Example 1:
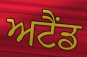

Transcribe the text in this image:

ਅਟੈਂਡ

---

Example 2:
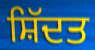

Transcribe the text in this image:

ਸ਼ਿੱਦਤ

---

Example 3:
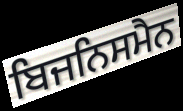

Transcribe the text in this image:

ਬਿਜਨਿਸਮੈਨ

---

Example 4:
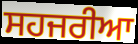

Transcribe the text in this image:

ਸਹਜਰੀਆ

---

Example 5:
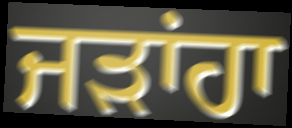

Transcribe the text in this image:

ਜੜਾਂਹਾ